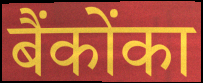
बैंकोंका